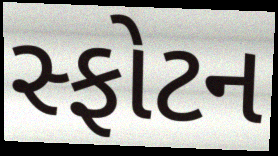
સ્ફોટન